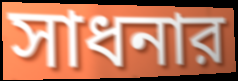
সাধনার